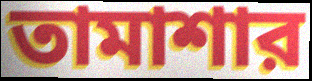
তামাশার